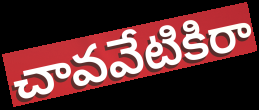
చావవేటికిరా